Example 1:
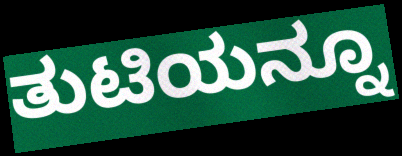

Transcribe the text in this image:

ತುಟಿಯನ್ನೂ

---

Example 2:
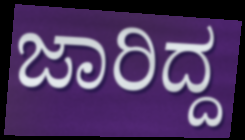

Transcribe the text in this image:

ಜಾರಿದ್ದ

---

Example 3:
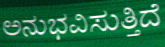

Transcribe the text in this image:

ಅನುಭವಿಸುತ್ತಿದೆ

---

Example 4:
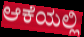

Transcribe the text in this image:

ಆಕೆಯಲ್ಲಿ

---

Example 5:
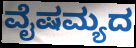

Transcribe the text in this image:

ವೈಷಮ್ಯದ